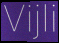
Vijli